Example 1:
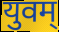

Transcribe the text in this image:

युवम्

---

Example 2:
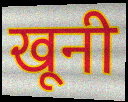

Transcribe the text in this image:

खूनी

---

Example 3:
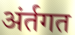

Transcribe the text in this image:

अंर्तगत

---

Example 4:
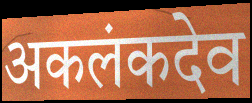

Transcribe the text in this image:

अकलंकदेव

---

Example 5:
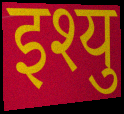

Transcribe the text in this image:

इश्यु